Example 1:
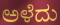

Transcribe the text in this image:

ಅಳೆದು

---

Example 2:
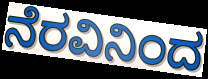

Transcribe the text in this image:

ನೆರವಿನಿಂದ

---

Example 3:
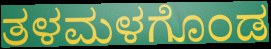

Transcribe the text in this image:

ತಳಮಳಗೊಂಡ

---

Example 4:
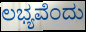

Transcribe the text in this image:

ಲಭ್ಯವೆಂದು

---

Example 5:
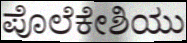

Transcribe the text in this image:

ಪೊಲೆಕೇಶಿಯು